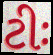
ટીઃ